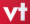
vt